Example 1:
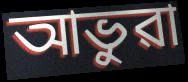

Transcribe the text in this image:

আভুৱা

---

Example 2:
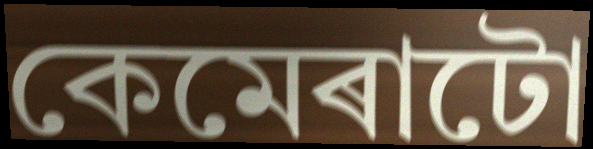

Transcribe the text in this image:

কেমেৰাটো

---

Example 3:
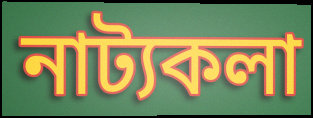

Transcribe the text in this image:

নাট্যকলা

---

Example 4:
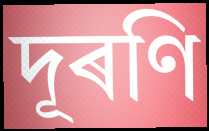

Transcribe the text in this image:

দূৰণি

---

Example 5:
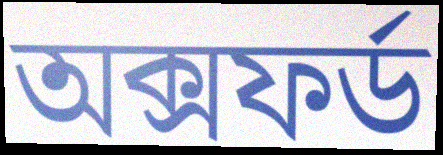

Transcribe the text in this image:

অক্সফৰ্ড